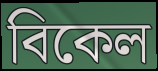
বিকেল